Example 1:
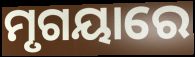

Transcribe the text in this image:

ମୃଗୟାରେ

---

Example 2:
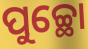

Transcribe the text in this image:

ପୁଚ୍ଛୋ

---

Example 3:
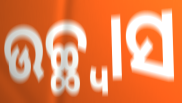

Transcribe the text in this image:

ଉଚ୍ଛ୍ୱାସ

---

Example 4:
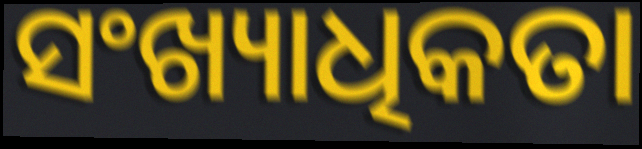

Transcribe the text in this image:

ସଂଖ୍ୟାଧିକତା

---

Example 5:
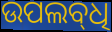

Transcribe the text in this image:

ଉପଲବ୍‌ଧି